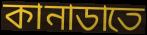
কানাডাতে